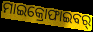
ମାଇକ୍ରୋଫାଇବର୍